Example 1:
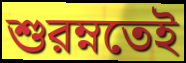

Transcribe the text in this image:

শুরম্নতেই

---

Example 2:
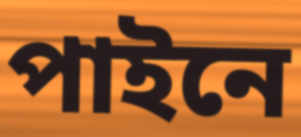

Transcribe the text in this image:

পাইনে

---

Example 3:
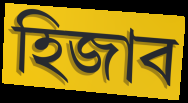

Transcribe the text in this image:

হিজাব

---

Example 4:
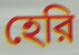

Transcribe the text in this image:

হেরি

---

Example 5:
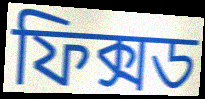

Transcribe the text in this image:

ফিক্সড